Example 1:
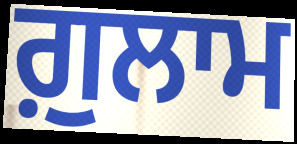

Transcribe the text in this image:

ਗ਼ੁਲਾਮ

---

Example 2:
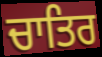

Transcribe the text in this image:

ਚਾਤਿਰ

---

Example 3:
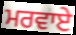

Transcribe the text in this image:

ਮਰਵਾਏ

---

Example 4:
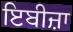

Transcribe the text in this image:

ਇਬੀਜ਼ਾ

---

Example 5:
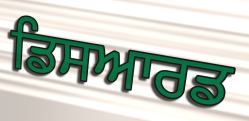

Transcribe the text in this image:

ਡਿਸਆਰਡ